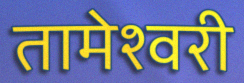
तामेश्वरी